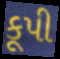
કૂપી